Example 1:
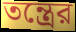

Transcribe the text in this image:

তন্ত্রের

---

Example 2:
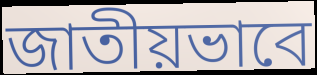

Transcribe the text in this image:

জাতীয়ভাবে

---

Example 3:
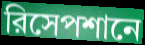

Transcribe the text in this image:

রিসেপশানে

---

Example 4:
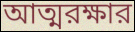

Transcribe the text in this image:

আত্মরক্ষার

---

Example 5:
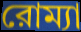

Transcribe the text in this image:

রোম্যা